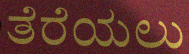
ತೆರೆಯಲು